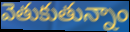
వెతుకుతున్నాం